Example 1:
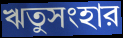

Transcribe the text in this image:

ঋতুসংহার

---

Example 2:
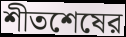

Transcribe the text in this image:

শীতশেষের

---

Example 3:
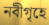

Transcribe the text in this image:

নবীগৃহে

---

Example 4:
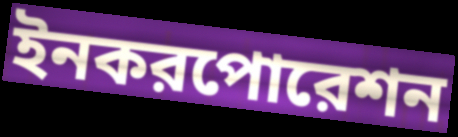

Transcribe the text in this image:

ইনকরপোরেশন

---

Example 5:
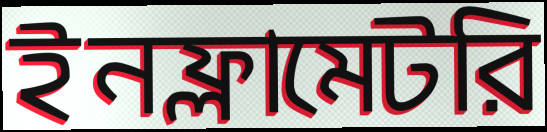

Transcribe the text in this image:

ইনফ্লামেটরি